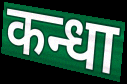
कन्धा